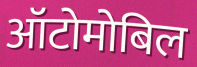
ऑटोमोबिल